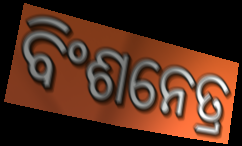
ବିଂଶନେତ୍ର